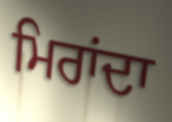
ਮਿਰਾਂਦਾ